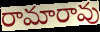
రామారావు